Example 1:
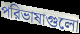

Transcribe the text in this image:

পরিভাষাগুলো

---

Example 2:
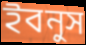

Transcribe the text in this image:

ইবনুস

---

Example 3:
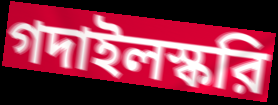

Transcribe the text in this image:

গদাইলস্করি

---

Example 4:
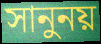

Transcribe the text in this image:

সানুনয়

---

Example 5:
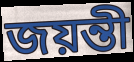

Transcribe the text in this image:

জয়ন্তী